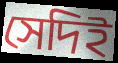
সেদিই